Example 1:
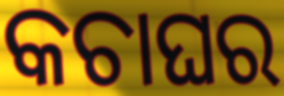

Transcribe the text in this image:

କଚାଘର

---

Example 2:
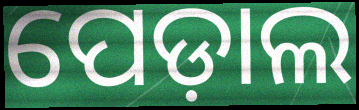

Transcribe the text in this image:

ପେଡ଼ାଲ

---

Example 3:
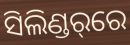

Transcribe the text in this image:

ସିଲିଣ୍ଡର୍‌ରେ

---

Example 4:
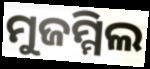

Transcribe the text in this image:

ମୁଜମ୍ମିଲ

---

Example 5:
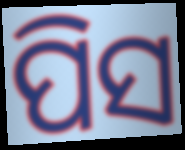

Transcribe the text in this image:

ପିସ